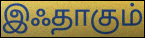
இஃதாகும்